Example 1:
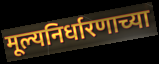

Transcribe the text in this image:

मूल्यनिर्धारणाच्या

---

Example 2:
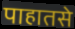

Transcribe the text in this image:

पाहातसे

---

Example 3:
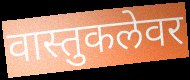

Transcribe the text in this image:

वास्तुकलेवर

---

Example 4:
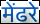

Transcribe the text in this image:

मेंढरे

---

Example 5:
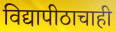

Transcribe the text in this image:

विद्यापीठाचाही